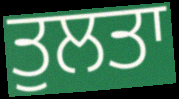
ਤੁਲਤਾ